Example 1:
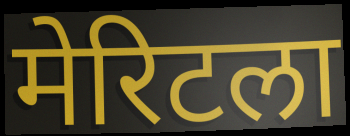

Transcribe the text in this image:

मेरिटला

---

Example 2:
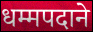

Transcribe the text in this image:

धम्मपदाने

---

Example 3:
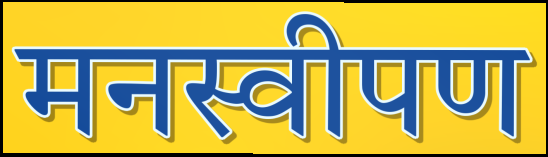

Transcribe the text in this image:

मनस्वीपण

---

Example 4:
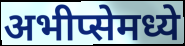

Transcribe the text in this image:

अभीप्सेमध्ये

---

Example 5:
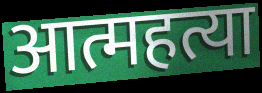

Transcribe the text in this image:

आत्महत्या